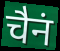
चैनं